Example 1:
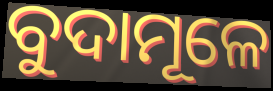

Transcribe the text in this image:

ବୁଦାମୂଳେ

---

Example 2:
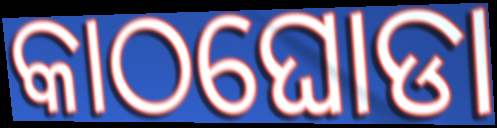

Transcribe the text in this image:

କାଠଘୋଡା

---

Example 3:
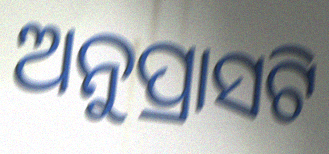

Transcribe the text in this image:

ଅନୁପ୍ରାସଟି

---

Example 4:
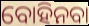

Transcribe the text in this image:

ବୋହିନବା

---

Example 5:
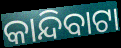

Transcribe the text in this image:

କାନ୍ଦିବାଟା